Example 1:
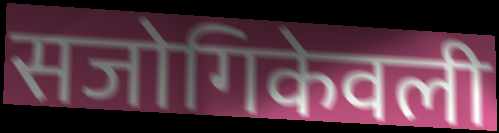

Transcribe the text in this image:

सजोगिकेवली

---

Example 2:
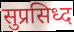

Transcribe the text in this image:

सुप्रसिध्द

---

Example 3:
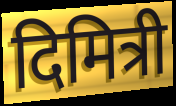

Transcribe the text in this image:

दिमित्री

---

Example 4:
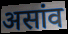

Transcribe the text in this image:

असांव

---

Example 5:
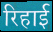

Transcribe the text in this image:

रिहाई